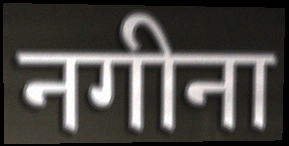
नगीना